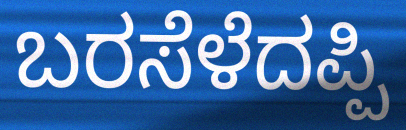
ಬರಸೆಳೆದಪ್ಪಿ